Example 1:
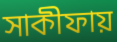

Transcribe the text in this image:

সাকীফায়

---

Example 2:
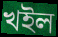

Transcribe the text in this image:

খইল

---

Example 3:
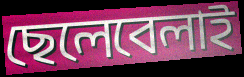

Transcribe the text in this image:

ছেলেবেলাই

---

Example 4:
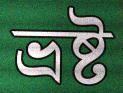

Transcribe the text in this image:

ভ্রষ্ট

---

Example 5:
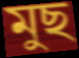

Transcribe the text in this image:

মুছ